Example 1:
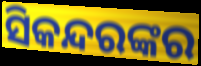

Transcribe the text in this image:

ସିକନ୍ଦରଙ୍କର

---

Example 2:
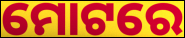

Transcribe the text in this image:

ମୋଟରେ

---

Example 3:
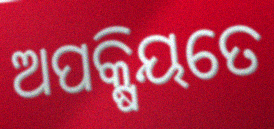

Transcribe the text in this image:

ଅପକ୍ଷିୟତେ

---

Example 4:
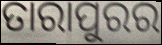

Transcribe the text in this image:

ତାରାପୁରର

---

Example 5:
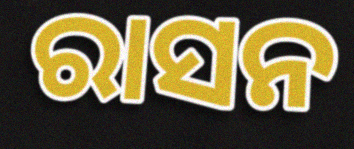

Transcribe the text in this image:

ରାସନ